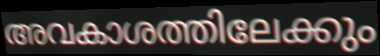
അവകാശത്തിലേക്കും